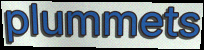
plummets